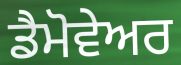
ਡੈਮੋਵੇਅਰ